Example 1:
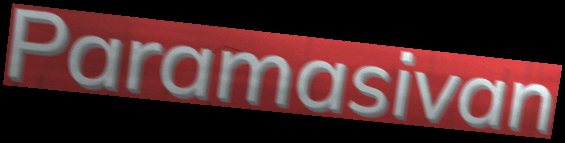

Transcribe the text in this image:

Paramasivan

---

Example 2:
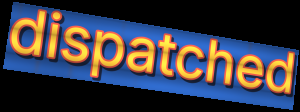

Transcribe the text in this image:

dispatched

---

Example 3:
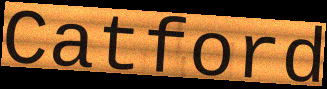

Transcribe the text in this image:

Catford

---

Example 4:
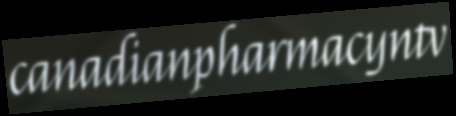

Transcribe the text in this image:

canadianpharmacyntv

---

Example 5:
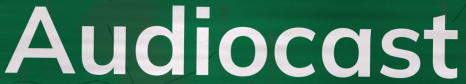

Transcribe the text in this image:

Audiocast